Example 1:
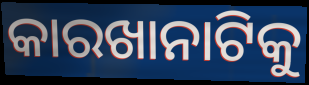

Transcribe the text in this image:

କାରଖାନାଟିକୁ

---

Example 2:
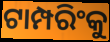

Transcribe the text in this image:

ଟାମ୍ପରିଂକୁ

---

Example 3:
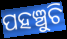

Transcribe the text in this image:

ପହଞ୍ଚୁଚି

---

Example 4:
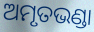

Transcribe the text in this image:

ଅମୃତଭଣ୍ଡା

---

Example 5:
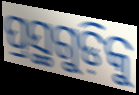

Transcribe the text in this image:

ପ୍ରସ୍ଥଗୁଡ଼ିକୁ